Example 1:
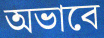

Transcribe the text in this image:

অভাবে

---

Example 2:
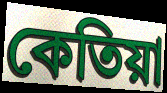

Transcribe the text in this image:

কেতিয়া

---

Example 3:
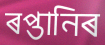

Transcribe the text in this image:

ৰপ্তানিৰ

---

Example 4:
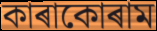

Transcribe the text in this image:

কাৰাকোৰাম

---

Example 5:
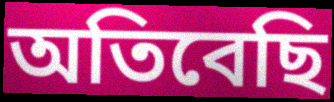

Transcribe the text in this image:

অতিবেছি